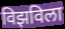
विझविला